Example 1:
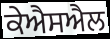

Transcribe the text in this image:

ਕੇਐਸਐਲ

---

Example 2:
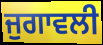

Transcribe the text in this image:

ਜੁਗਾਵਲੀ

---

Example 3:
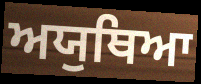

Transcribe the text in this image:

ਅਯੁਥਿਆ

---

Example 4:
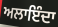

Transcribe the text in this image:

ਅਲਾਇੰਦਾ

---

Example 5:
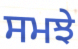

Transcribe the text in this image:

ਸਮਝੇ